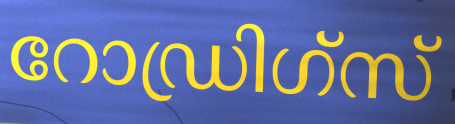
റോഡ്രിഗ്സ്